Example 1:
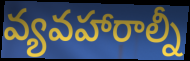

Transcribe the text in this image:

వ్యవహారాల్నీ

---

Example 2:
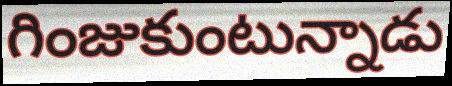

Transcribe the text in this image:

గింజుకుంటున్నాడు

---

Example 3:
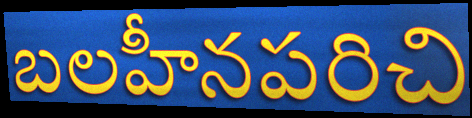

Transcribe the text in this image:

బలహీనపరిచి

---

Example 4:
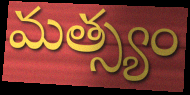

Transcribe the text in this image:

మత్స్యం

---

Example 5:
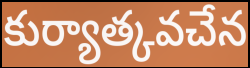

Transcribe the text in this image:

కుర్యాత్కవచేన